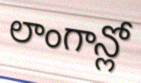
లాంగాన్లో